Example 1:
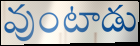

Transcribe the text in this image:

వుంటాడు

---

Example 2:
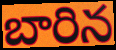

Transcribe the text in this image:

బారిన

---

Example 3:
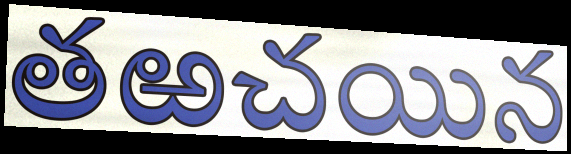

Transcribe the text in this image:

తఱచయిన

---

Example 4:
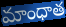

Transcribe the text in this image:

మాంధాత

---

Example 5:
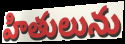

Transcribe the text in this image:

హితులును